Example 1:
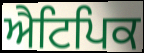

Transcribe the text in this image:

ਐਟਿਪਿਕ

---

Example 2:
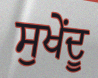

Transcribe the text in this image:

ਸੁਖੇਂਦੂ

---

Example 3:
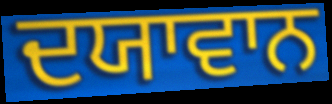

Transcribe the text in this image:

ਦਯਾਵਾਨ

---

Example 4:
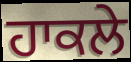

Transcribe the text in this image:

ਹਾਕਲੇ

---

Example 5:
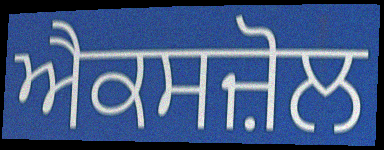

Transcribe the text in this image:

ਐਕਸਜ਼ੋਲ